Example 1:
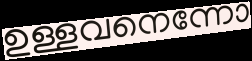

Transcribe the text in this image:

ഉള്ളവനെന്നോ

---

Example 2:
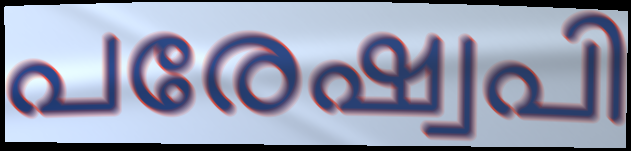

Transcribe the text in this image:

പരേഷ്വപി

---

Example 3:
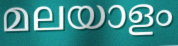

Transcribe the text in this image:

മലയാളം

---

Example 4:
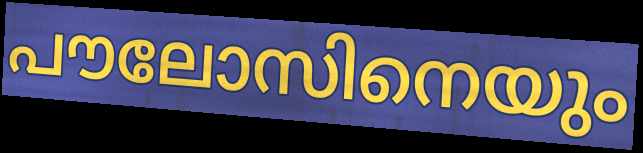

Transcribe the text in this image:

പൗലോസിനെയും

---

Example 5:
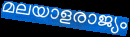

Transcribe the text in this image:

മലയാളരാജ്യം